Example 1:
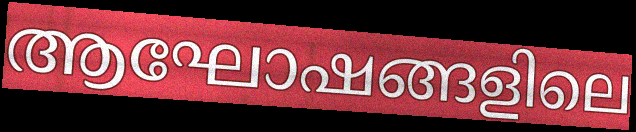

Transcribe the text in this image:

ആഘോഷങ്ങളിലെ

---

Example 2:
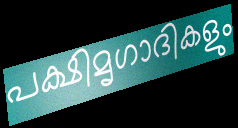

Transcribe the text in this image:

പക്ഷിമൃഗാദികളും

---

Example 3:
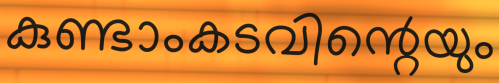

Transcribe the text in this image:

കുണ്ടാംകടവിന്റെയും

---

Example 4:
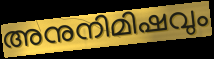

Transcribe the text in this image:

അനുനിമിഷവും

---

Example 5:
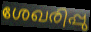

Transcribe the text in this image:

ശേഖരിപ്പു